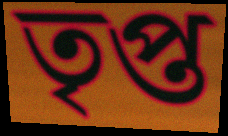
তৃপ্ত